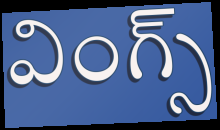
వింగ్స్